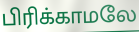
பிரிக்காமலே